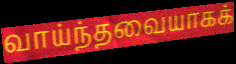
வாய்ந்தவையாகக்